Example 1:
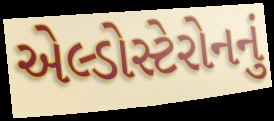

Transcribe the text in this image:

એલ્ડોસ્ટેરોનનું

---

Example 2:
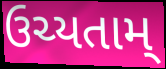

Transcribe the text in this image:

ઉચ્યતામ્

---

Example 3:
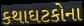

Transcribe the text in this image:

કથાઘટકોના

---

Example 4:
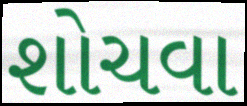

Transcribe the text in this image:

શોચવા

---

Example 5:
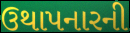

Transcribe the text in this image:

ઉથાપનારની